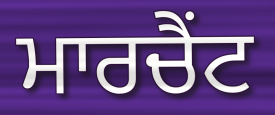
ਮਾਰਚੈਂਟ